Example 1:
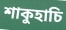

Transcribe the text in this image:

শাকুহাচি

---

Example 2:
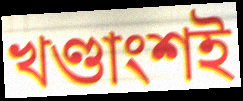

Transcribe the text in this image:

খণ্ডাংশই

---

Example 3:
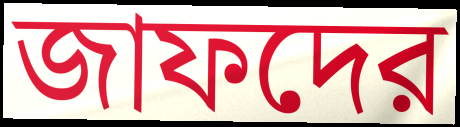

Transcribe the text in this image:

জাফদের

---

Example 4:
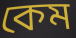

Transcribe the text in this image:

কেম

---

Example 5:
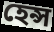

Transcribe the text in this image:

হেন্স